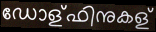
ഡോള്ഫിനുകള്